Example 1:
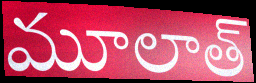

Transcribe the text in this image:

మూలాత్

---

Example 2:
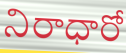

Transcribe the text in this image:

నిరాధారో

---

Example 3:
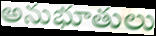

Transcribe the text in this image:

అనుభూతులు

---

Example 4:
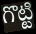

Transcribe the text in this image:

గొట్టి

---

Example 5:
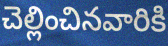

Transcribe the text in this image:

చెల్లించినవారికి